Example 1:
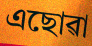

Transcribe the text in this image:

এছোৱা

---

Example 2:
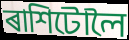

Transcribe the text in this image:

ৰাশিটোলৈ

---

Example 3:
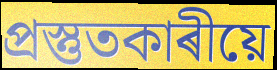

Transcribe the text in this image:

প্ৰস্তুতকাৰীয়ে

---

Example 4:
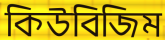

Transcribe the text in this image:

কিউবিজিম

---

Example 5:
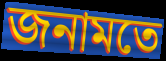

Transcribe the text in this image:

জনামতে